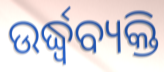
ଉର୍ଦ୍ଧ୍ୱବ୍ୟକ୍ତି